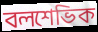
বলশেভিক